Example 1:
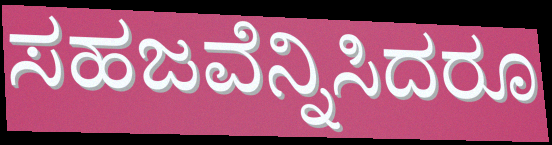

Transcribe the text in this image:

ಸಹಜವೆನ್ನಿಸಿದರೂ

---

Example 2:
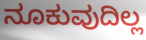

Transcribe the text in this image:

ನೂಕುವುದಿಲ್ಲ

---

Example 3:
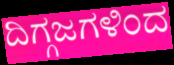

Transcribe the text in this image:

ದಿಗ್ಗಜಗಳಿಂದ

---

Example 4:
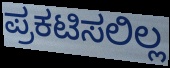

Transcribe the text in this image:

ಪ್ರಕಟಿಸಲಿಲ್ಲ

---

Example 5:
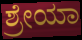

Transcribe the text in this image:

ಶ್ರೇಯಾ